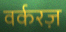
वर्करज़